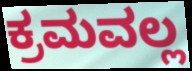
ಕ್ರಮವಲ್ಲ